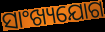
ସାଂଖ୍ୟଯୋଗ